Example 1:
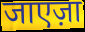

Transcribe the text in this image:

जाएज़ा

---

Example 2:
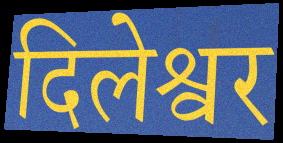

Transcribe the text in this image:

दिलेश्वर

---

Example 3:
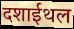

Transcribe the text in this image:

दशाईथल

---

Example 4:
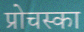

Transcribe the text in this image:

प्रोचस्का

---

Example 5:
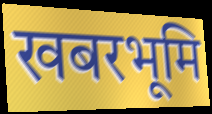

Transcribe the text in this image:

खबरभूमि